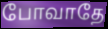
போவாதே